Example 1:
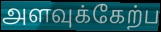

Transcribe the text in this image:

அளவுக்கேற்ப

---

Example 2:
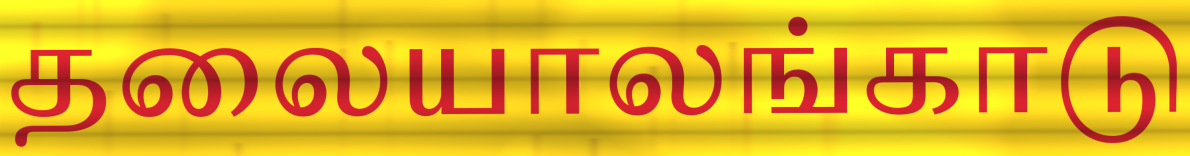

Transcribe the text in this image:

தலையாலங்காடு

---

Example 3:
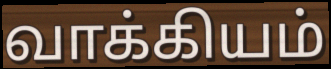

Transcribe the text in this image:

வாக்கியம்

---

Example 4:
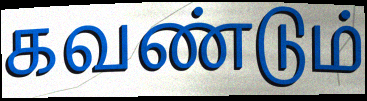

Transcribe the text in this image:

கவண்டும்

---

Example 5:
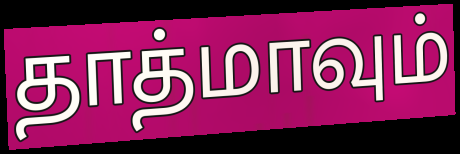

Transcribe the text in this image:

தாத்மாவும்